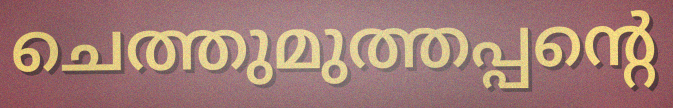
ചെത്തുമുത്തപ്പന്റെ